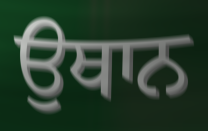
ਉਥਾਨ